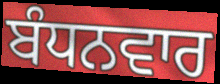
ਬੰਧਨਵਾਰ